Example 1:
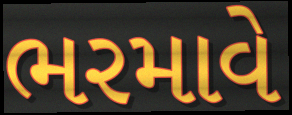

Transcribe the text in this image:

ભરમાવે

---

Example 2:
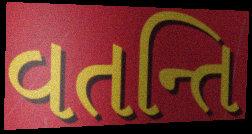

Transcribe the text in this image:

વતન્તિ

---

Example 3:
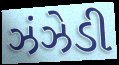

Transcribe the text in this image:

ઝંઝેડી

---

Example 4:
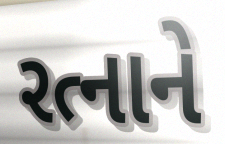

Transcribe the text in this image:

રત્નાને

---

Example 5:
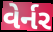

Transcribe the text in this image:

વેર્નર